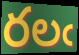
రలఁ